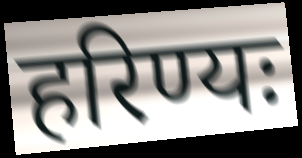
हरिण्यः